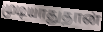
முடியாதுதான்